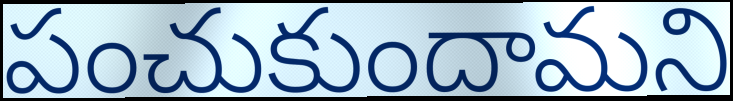
పంచుకుందామని